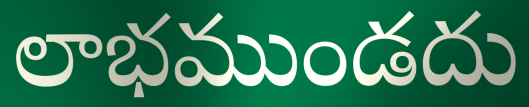
లాభముండదు